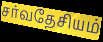
சர்வதேசியம்